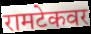
रामटेकवर